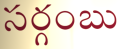
సర్గంబు